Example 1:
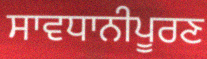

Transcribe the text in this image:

ਸਾਵਧਾਨੀਪੂਰਣ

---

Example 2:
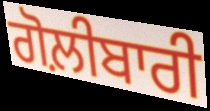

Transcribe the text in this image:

ਗੋਲ਼ੀਬਾਰੀ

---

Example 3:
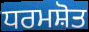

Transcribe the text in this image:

ਧਰਮਸ਼ੋਤ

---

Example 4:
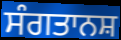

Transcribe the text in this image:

ਸੰਗਤਾਨਸ਼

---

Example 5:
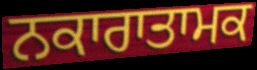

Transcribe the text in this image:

ਨਕਾਰਾਤਾਮਕ